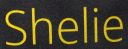
Shelie